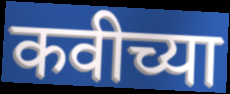
कवीच्या